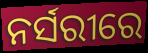
ନର୍ସରୀରେ